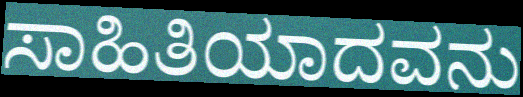
ಸಾಹಿತಿಯಾದವನು